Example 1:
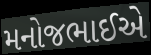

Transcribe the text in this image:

મનોજભાઈએ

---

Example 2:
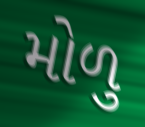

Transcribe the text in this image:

મોળુ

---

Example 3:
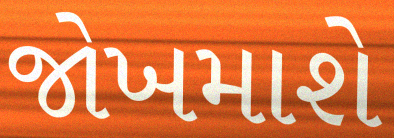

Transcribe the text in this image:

જોખમાશે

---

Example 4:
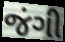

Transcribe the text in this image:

જંગી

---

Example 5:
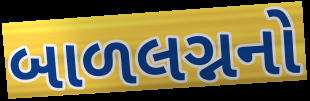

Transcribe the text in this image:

બાળલગ્નનો